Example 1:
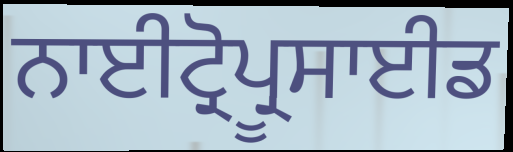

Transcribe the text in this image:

ਨਾਈਟ੍ਰੋਪ੍ਰੂਸਾਈਡ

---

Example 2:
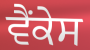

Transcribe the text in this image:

ਵੈਂਕੇਸ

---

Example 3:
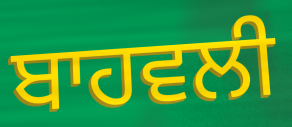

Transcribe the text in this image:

ਬਾਹਵਲੀ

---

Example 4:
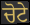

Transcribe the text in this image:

ਚੋਟੇ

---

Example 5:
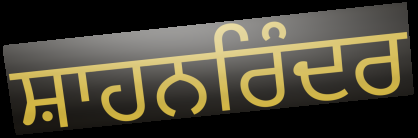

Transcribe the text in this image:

ਸ਼ਾਹਨਰਿੰਦਰ